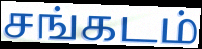
சங்கடம்